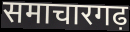
समाचारगढ़